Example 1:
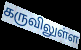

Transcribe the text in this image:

கருவிலுள்ள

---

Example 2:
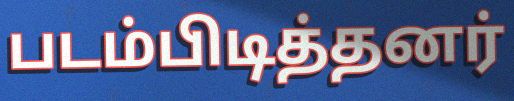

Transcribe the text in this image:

படம்பிடித்தனர்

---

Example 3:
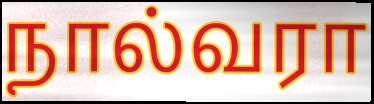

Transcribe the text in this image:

நால்வரா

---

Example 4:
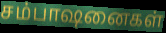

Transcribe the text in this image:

சம்பாஷனைகள்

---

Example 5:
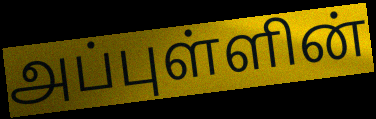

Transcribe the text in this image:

அப்புள்ளின்